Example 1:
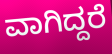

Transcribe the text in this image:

ವಾಗಿದ್ದರೆ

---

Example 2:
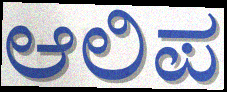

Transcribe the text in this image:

ಆಲಿಪ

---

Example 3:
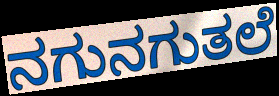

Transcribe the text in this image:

ನಗುನಗುತಲೆ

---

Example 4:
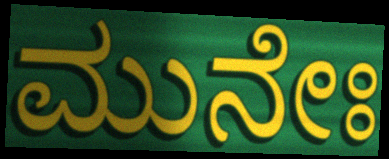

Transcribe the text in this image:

ಮುನೇಃ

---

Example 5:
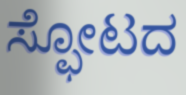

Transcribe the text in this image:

ಸ್ಫೋಟದ